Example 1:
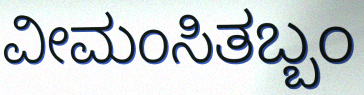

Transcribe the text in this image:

ವೀಮಂಸಿತಬ್ಬಂ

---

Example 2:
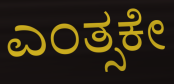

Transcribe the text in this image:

ಎಂತ್ಸಕೇ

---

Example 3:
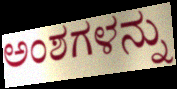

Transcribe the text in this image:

ಅಂಶಗಳನ್ನು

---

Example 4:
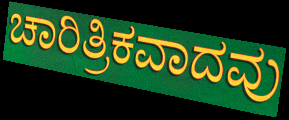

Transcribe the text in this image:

ಚಾರಿತ್ರಿಕವಾದವು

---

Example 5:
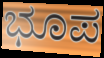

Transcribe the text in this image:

ಭೂಪ